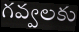
గవ్వలకు